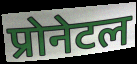
प्रोनेटल